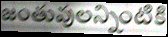
జంతువులన్నింటికి